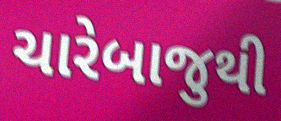
ચારેબાજુથી